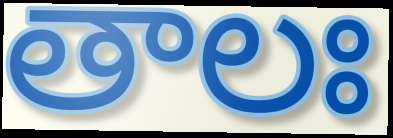
తాలః